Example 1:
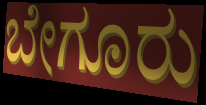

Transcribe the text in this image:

ಬೇಗೂರು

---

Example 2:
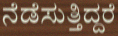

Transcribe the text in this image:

ನೆಡೆಸುತ್ತಿದ್ದರೆ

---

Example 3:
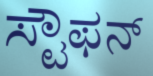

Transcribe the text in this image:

ಸ್ಟೌಫನ್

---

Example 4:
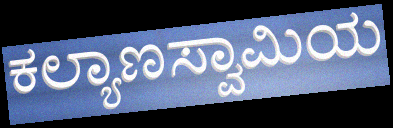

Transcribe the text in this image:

ಕಲ್ಯಾಣಸ್ವಾಮಿಯ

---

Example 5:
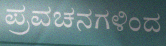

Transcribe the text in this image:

ಪ್ರವಚನಗಳಿಂದ